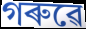
গৰুৱে